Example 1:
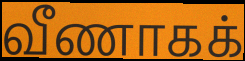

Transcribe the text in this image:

வீணாகக்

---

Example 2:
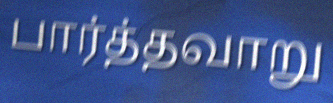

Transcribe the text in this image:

பார்த்தவாறு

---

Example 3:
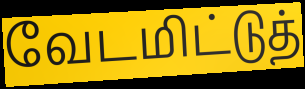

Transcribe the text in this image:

வேடமிட்டுத்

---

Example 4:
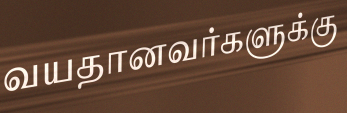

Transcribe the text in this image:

வயதானவர்களுக்கு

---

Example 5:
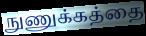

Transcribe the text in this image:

நுணுக்கத்தை